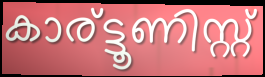
കാര്ട്ടൂണിസ്റ്റ്